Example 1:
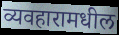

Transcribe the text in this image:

व्यवहारामधील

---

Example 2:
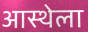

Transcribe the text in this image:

आस्थेला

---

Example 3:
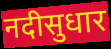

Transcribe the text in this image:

नदीसुधार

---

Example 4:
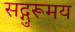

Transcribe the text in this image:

सद्गुरूमय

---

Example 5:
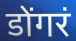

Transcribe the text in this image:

डोंगरं